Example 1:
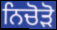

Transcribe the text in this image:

ਨਿਚੋੜੋ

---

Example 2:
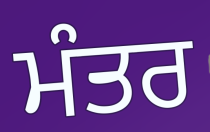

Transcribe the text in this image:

ਮੰਤਰ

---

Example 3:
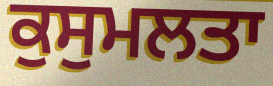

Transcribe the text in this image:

ਕੁਸੁਮਲਤਾ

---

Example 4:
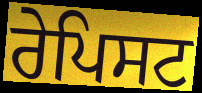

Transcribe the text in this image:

ਰੇਪਿਸਟ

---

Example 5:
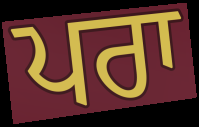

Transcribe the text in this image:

ਪਰਾ